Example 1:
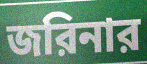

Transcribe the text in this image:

জরিনার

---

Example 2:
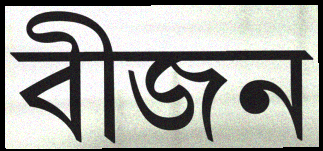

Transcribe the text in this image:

বীজন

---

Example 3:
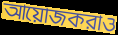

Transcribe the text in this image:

আয়োজকরাও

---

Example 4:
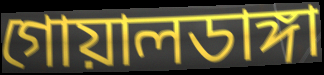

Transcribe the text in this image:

গোয়ালডাঙ্গা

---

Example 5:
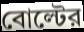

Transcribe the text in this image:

বোল্টের